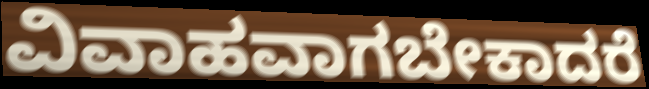
ವಿವಾಹವಾಗಬೇಕಾದರೆ